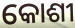
କୋଶୀ